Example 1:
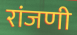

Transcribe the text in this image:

रांजणी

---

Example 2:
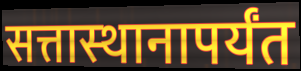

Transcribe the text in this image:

सत्तास्थानापर्यंत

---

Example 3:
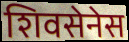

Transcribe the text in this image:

शिवसेनेस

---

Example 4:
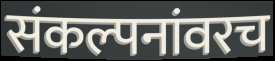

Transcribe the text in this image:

संकल्पनांवरच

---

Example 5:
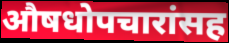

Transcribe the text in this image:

औषधोपचारांसह